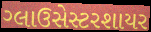
ગ્લાઉસેસ્ટરશાયર